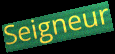
Seigneur